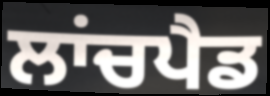
ਲਾਂਚਪੈਡ